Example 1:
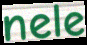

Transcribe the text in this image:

nele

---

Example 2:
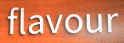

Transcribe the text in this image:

flavour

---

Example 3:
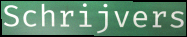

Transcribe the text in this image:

Schrijvers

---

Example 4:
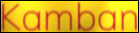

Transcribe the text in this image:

Kamban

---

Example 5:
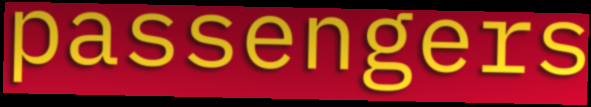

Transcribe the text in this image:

passengers